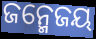
ଜନ୍ମେଜୟ